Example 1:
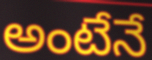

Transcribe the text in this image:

అంటేనే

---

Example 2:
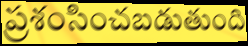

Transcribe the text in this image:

ప్రశంసించబడుతుంది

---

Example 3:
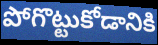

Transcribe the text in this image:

పోగొట్టుకోడానికి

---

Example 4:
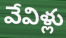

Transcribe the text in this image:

వేవిళ్లు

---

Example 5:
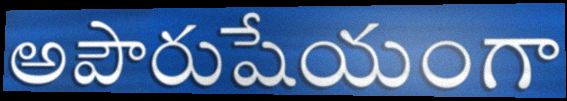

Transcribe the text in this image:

అపౌరుషేయంగా